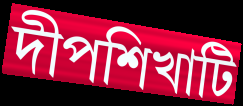
দীপশিখাটি